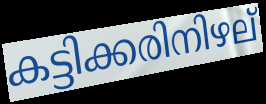
കട്ടിക്കരിനിഴല്